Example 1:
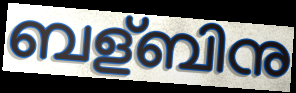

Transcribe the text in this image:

ബള്ബിനു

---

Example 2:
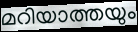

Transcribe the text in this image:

മറിയാത്തയും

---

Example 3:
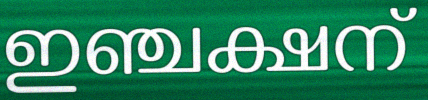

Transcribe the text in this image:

ഇഞ്ചക്ഷന്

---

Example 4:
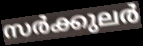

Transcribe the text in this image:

സർക്കുലർ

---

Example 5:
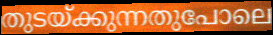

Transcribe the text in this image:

തുടയ്ക്കുന്നതുപോലെ